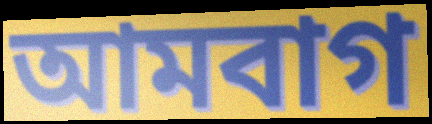
আমবাগ